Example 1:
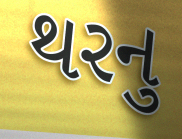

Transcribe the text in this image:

થરનુ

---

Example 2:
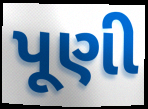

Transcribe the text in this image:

પૂણી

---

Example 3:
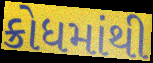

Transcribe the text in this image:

ક્રોધમાંથી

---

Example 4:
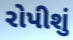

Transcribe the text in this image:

રોપીશું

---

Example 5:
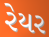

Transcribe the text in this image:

રેયર